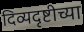
दिव्यदृष्टीच्या